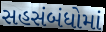
સહસંબંધોમાં